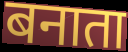
बनाता